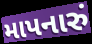
માપનારું